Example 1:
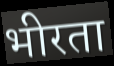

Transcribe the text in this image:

भीरता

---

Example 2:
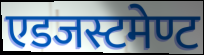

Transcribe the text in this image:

एडजस्टमेण्ट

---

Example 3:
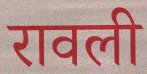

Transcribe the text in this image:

रावली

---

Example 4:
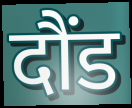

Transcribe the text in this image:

दौंड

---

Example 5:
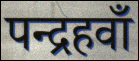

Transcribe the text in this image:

पन्द्रहवाँ